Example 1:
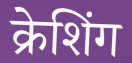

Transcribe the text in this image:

क्रेशिंग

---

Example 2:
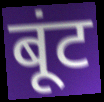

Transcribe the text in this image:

बूंट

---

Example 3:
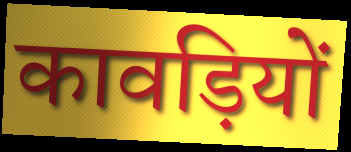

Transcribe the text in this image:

कावड़ियों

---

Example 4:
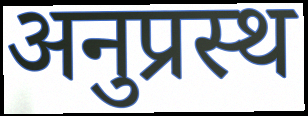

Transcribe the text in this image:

अनुप्रस्थ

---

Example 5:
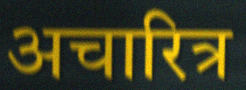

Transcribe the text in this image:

अचारित्र